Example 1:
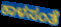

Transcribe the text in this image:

ಕಾಳಸಂತೆ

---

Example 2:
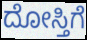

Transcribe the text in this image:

ದೋಸ್ತಿಗೆ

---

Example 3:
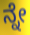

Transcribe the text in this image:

ನ್ನೇ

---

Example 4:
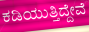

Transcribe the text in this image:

ಕಡಿಯುತ್ತಿದ್ದೇವೆ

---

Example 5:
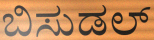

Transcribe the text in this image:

ಬಿಸುಡಲ್